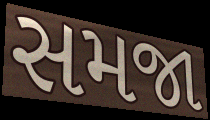
સમજા